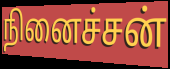
நினைச்சன்